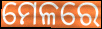
ମେଳରେ